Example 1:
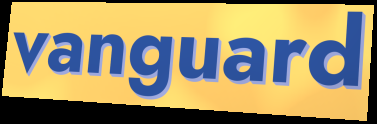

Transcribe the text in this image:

vanguard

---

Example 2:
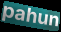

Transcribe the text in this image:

pahun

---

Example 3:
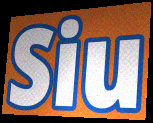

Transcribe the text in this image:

Siu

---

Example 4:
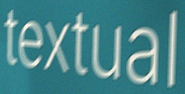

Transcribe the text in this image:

textual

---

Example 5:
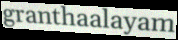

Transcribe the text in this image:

granthaalayam